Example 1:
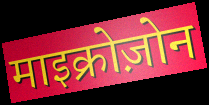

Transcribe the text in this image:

माइक्रोज़ोन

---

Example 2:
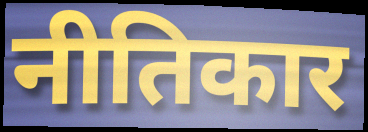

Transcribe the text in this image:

नीतिकार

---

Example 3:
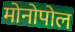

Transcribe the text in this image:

मोनोपोल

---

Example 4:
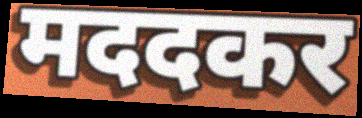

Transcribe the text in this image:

मददकर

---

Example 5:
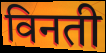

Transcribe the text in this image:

विनती